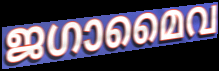
ജഗാമൈവ